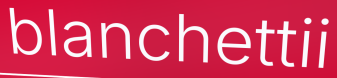
blanchettii